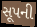
સૂપની